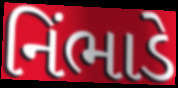
નિંભાડે